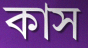
কাস